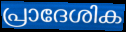
പ്രാദേശിക